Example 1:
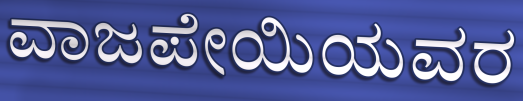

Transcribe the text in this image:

ವಾಜಪೇಯಿಯವರ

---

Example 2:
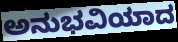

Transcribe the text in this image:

ಅನುಭವಿಯಾದ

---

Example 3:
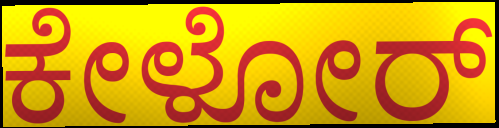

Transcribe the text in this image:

ಕೇಳೋರ್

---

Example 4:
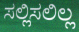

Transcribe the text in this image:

ಸಲ್ಲಿಸಲಿಲ್ಲ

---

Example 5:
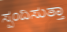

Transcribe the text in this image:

ಸ್ಪಂದಿಸುತ್ತಾ